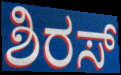
ಶಿರಸ್